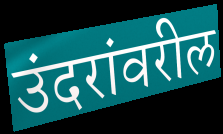
उंदरांवरील